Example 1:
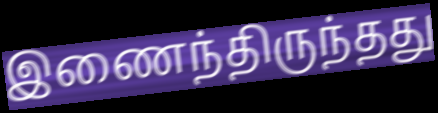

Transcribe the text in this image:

இணைந்திருந்தது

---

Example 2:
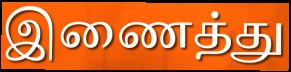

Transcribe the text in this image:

இணைத்து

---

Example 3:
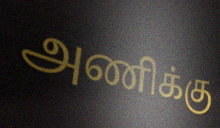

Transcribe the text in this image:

அணிக்கு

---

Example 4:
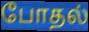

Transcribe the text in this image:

போதல்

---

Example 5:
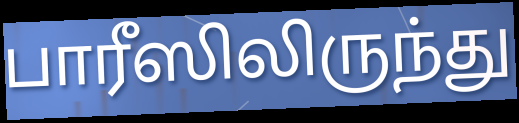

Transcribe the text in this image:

பாரீஸிலிருந்து